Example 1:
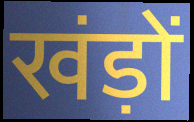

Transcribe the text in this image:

खंड़ों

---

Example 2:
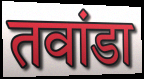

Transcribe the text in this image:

तवांडा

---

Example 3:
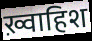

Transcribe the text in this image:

ख़्वाहिश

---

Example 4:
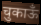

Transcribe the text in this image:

चुकाऊँ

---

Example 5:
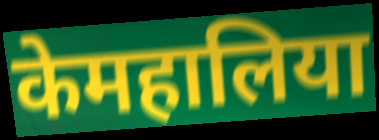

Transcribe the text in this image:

केमहालिया